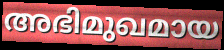
അഭിമുഖമായ